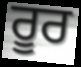
ਰੂਰ